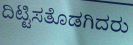
ದಿಟ್ಟಿಸತೊಡಗಿದರು